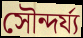
সৌন্দৰ্য্য